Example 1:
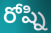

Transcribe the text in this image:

రోష్ని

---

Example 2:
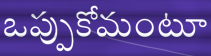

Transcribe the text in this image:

ఒప్పుకోమంటూ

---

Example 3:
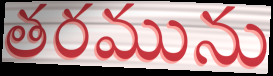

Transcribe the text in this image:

తరమును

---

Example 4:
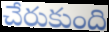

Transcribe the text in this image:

చేరుకుంది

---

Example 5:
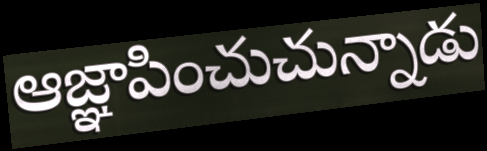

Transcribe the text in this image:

ఆజ్ఞాపించుచున్నాడు